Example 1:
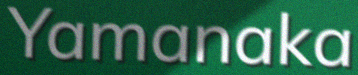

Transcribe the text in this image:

Yamanaka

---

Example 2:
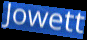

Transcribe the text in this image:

Jowett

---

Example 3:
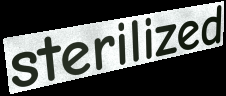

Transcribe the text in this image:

sterilized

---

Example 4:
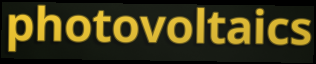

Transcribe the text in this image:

photovoltaics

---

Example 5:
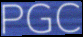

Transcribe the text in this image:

PGC